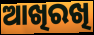
ଆଖିରଖି